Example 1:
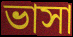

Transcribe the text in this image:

ভাসা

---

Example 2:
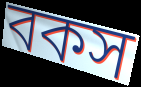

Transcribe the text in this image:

বকস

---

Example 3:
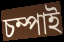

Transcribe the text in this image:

চম্পাই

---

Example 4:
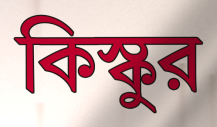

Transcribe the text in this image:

কিস্কুর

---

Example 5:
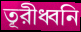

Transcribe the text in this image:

তূরীধ্বনি